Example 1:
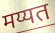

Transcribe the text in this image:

मय्यत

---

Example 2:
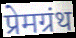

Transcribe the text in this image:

प्रेमग्रंथ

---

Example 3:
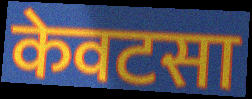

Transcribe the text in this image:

केवटसा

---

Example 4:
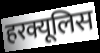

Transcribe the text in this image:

हरक्यूलिस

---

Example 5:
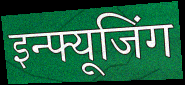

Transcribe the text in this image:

इन्फ्यूजिंग